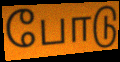
போடு